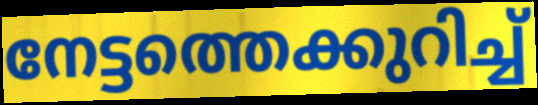
നേട്ടത്തെക്കുറിച്ച്